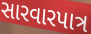
સારવારપાત્ર